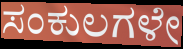
ಸಂಕುಲಗಳೇ